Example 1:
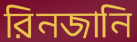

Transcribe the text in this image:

রিনজানি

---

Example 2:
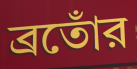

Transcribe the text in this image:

ব্রতোঁর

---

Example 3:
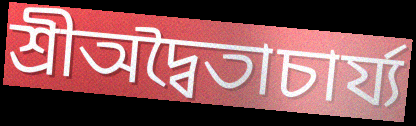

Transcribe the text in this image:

শ্রীঅদ্বৈতাচার্য্য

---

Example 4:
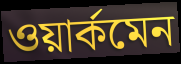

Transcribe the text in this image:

ওয়ার্কমেন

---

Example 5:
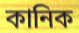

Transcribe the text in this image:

কানিক